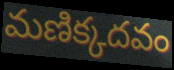
మణిక్కదవం